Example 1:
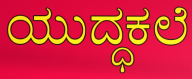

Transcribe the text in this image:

ಯುದ್ಧಕಲೆ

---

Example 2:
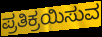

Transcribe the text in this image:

ಪ್ರತಿಕ್ರಯಿಸುವ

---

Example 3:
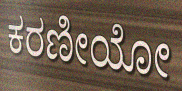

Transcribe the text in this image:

ಕರಣೀಯೋ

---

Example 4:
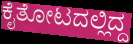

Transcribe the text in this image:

ಕೈತೋಟದಲ್ಲಿದ್ದ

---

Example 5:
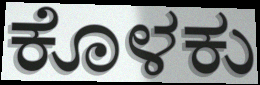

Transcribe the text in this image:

ಕೊಳಕು